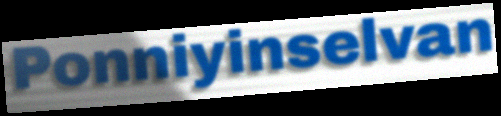
Ponniyinselvan